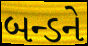
બન્ડને